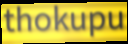
thokupu